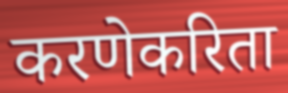
करणेकरिता